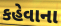
કહેવાના